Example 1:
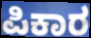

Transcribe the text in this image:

ಪಿಕಾರ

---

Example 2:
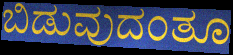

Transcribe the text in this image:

ಬಿಡುವುದಂತೂ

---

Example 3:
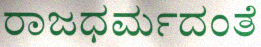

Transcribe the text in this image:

ರಾಜಧರ್ಮದಂತೆ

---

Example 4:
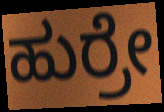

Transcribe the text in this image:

ಹುರ್ರೇ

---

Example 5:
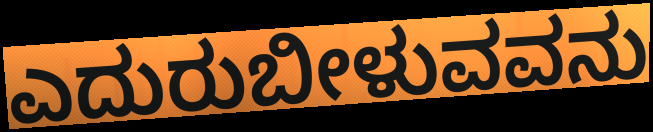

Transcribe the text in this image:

ಎದುರುಬೀಳುವವನು